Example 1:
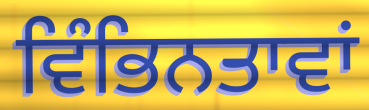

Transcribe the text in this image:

ਵਿੰਭਿਨਤਾਵਾਂ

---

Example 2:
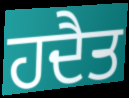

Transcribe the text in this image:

ਹਦੈਤ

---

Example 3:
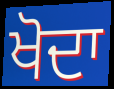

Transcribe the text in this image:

ਖੋਦਾ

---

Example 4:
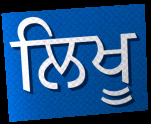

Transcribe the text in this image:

ਲਿਖੂ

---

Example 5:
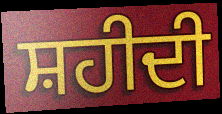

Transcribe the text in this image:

ਸ਼ਹੀਦੀ